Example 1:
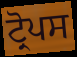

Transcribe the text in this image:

ਟ੍ਰੋਪਸ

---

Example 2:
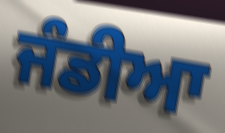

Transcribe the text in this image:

ਜੰਡੀਆ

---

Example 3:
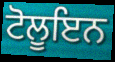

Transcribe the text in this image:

ਟੋਲੂਇਨ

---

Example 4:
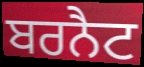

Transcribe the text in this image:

ਬਰਨੈਟ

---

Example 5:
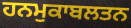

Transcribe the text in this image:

ਹਨਮੁਕਾਬਲਤਨ